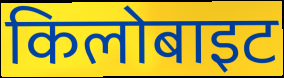
किलोबाइट